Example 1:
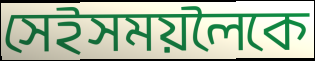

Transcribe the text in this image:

সেইসময়লৈকে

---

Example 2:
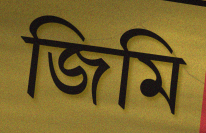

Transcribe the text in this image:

জিমি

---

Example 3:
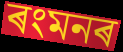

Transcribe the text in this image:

ৰংমনৰ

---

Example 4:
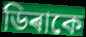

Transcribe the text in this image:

ডিৰাকে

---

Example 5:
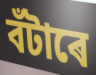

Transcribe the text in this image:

বঁটাৰে